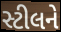
સ્ટીલને